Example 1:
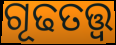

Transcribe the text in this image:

ଗୂଢତତ୍ତ୍ୱ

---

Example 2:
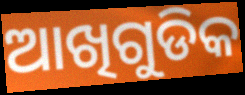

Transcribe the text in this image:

ଆଖିଗୁଡିକ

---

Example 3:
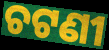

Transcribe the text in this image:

ଚଟଣୀ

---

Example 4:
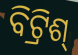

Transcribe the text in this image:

ବିଟ୍ରିଶ୍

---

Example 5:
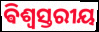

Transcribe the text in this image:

ଵିଶ୍ୱସ୍ତରୀୟ